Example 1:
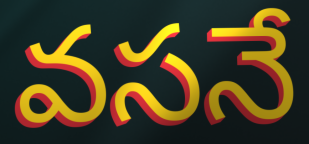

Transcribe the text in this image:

వసనే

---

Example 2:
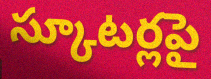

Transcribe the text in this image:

స్కూటర్లపై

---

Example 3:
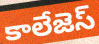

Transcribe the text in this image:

కాలేజెస్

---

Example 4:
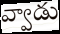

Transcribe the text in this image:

వ్వాడు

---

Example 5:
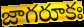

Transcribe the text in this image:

జాగరూకః